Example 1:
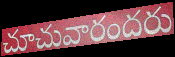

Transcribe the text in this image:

చూచువారందరు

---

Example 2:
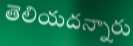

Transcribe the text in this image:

తెలియదన్నారు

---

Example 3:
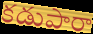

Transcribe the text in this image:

కడుపారా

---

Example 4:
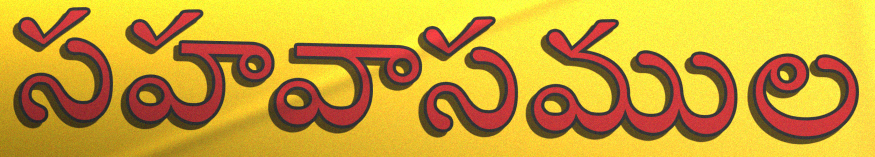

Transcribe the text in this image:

సహవాసముల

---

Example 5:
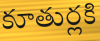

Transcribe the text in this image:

కూతుర్లకి